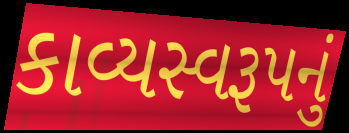
કાવ્યસ્વરૂપનું